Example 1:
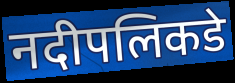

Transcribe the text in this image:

नदीपलिकडे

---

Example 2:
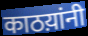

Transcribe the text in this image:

काठय़ांनी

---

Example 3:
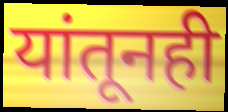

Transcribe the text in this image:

यांतूनही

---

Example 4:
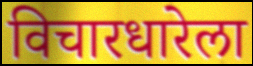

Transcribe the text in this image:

विचारधारेला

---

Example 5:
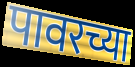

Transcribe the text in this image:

पावरच्या